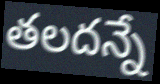
తలదన్నే